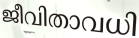
ജീവിതാവധി